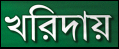
খরিদায়